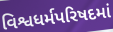
વિશ્વધર્મપરિષદમાં